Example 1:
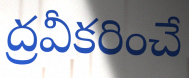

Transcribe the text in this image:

ద్రవీకరించే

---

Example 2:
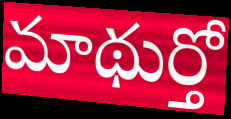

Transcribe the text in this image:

మాథుర్తో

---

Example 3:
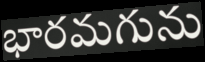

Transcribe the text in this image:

భారమగును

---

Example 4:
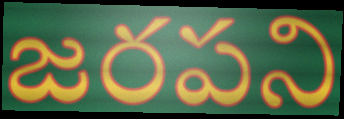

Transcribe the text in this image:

జరపని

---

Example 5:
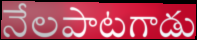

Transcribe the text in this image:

నేలపాటగాడు